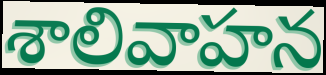
శాలివాహన